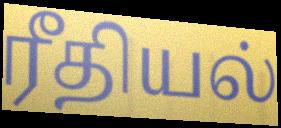
ரீதியல்